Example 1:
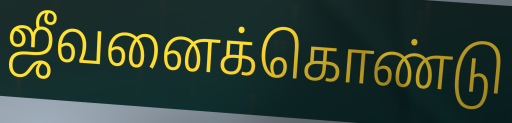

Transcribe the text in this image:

ஜீவனைக்கொண்டு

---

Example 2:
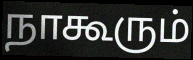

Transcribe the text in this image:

நாகூரும்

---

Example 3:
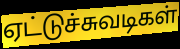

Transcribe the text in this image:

ஏட்டுச்சுவடிகள்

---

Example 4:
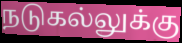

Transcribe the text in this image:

நடுகல்லுக்கு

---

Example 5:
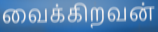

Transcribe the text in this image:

வைக்கிறவன்